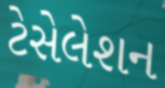
ટેસેલેશન